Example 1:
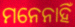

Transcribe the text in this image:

ମନେନାହିଁ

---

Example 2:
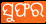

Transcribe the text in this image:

ସୁଫର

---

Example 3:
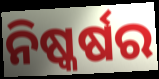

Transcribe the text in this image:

ନିଷ୍କର୍ଷର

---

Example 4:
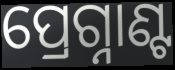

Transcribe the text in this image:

ପ୍ରେଗ୍ନାଣ୍ଟ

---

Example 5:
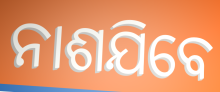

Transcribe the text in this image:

ନାଶଯିବେ